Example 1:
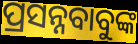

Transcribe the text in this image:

ପ୍ରସନ୍ନବାବୁଙ୍କ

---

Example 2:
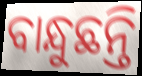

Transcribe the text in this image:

ବାନ୍ଧୁଛନ୍ତି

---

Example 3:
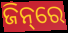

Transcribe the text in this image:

ଜିନ୍‌ରେ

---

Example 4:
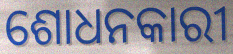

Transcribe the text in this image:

ଶୋଧନକାରୀ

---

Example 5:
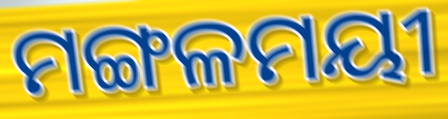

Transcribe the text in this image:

ମଙ୍ଗଳମୟୀ